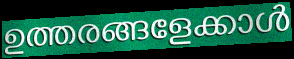
ഉത്തരങ്ങളേക്കാൾ